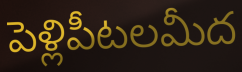
పెళ్లిపీటలమీద